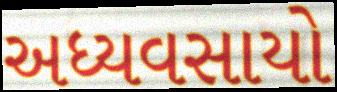
અધ્યવસાયો